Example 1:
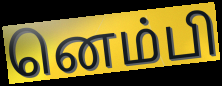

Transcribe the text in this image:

னெம்பி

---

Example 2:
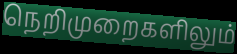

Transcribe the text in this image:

நெறிமுறைகளிலும்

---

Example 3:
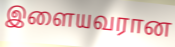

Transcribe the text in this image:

இளையவரான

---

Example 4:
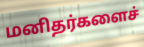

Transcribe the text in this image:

மனிதர்களைச்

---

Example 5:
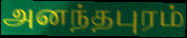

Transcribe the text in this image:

அனந்தபுரம்